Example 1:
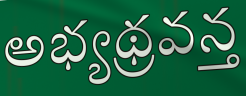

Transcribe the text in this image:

అభ్యథ్రవన్త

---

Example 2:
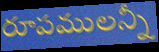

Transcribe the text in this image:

రూపములన్నీ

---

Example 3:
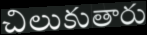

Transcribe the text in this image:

చిలుకుతారు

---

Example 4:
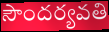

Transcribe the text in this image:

సౌందర్యవతి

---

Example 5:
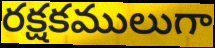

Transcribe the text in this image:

రక్షకములుగా